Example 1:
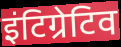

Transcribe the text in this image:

इंटिग्रेटिव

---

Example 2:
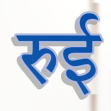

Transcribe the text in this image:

रुई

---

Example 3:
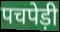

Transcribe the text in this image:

पचपेड़ी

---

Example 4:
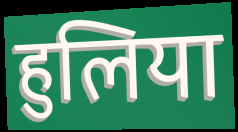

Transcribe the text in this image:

हुलिया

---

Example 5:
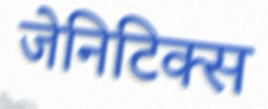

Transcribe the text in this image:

जेनिटिक्स